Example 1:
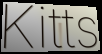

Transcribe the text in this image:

Kitts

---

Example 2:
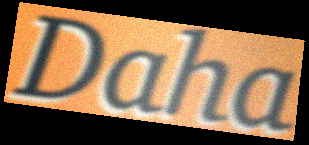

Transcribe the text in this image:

Daha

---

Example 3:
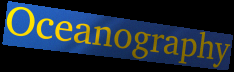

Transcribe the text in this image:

Oceanography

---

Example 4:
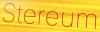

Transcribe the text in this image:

Stereum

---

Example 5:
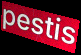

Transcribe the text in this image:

pestis